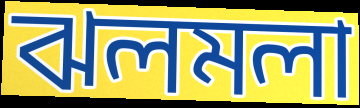
ঝলমলা